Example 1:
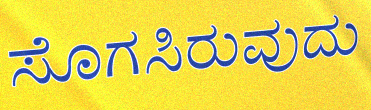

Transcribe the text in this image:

ಸೊಗಸಿರುವುದು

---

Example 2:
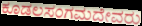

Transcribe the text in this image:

ಕೂಡಲಸಂಗಮದೇವರು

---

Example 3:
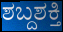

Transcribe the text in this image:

ಶಬ್ದಶಕ್ತಿ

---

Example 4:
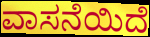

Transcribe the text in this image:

ವಾಸನೆಯಿದೆ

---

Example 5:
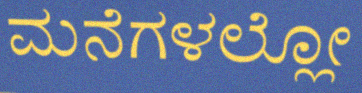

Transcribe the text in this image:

ಮನೆಗಳಲ್ಲೋ